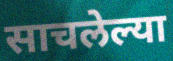
साचलेल्या